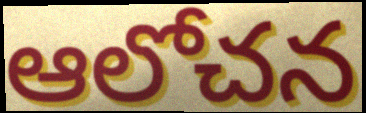
ఆలోచన